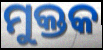
ମୁକ୍ତକ